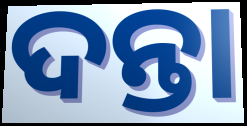
ଦନ୍ତା